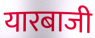
यारबाजी